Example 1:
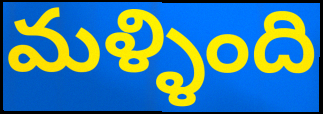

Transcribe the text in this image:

మళ్ళింది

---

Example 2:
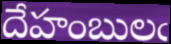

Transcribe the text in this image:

దేహంబులఁ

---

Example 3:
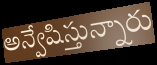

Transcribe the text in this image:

అన్వేషిస్తున్నారు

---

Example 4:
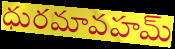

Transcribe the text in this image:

ధురమావహమ్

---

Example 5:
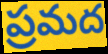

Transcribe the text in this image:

ప్రమద